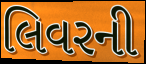
લિવરની